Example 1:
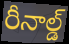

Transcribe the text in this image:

రీనాల్డ్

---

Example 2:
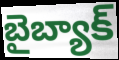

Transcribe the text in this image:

బైబ్యాక్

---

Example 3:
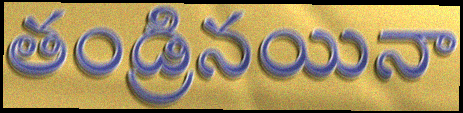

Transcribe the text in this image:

తండ్రినయినా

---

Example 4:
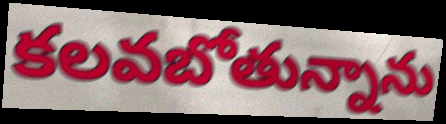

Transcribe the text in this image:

కలవబోతున్నాను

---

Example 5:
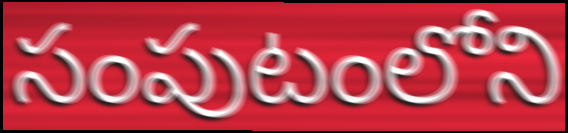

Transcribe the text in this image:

సంపుటంలోని